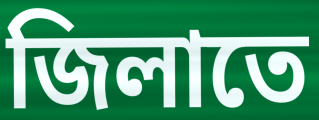
জিলাতে